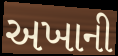
અખાની